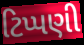
ટિપ્પણી